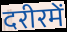
दरीरमें